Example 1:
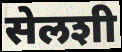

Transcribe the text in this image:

सेलशी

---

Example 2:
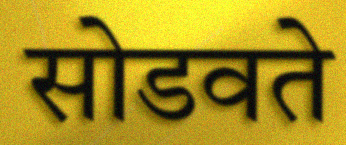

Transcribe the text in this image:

सोडवते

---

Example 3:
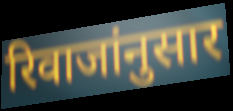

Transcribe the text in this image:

रिवाजांनुसार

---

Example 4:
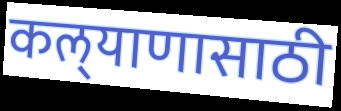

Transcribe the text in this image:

कल्याणासाठी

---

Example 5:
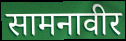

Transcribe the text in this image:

सामनावीर